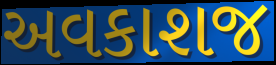
અવકાશજ